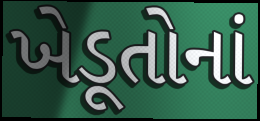
ખેડૂતોનાં